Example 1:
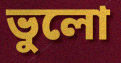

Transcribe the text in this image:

ভুলো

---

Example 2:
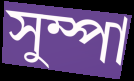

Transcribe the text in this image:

সুম্পা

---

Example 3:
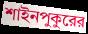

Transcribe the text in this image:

শাইনপুকুরের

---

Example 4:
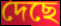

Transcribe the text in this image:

দেছে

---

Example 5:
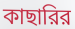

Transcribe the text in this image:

কাছারির